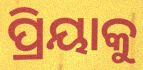
ପ୍ରିୟାକୁ